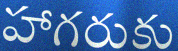
హాగరుకు